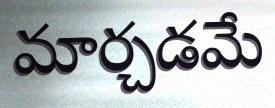
మార్చడమే